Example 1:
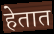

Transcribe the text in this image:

हेतात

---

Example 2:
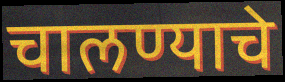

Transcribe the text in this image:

चालण्याचे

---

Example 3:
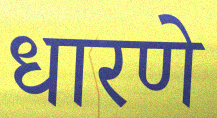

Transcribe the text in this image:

धारणे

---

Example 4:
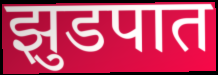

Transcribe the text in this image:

झुडपात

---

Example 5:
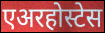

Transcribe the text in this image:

एअरहोस्टेस